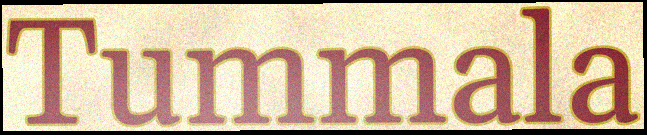
Tummala